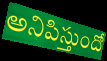
అనిపిస్తుందో